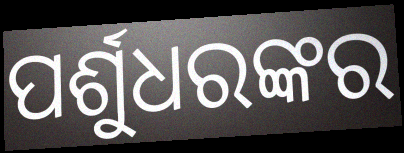
ପର୍ଶୁଧରଙ୍କର